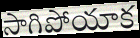
సాగిపోయాక